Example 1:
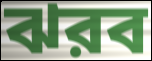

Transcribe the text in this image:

ঝরব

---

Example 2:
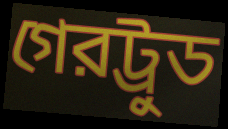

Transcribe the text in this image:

গেরট্রুড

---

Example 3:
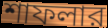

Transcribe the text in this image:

শাফলার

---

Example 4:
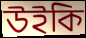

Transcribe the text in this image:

উইকি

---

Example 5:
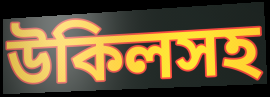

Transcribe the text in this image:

উকিলসহ